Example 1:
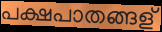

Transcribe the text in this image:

പക്ഷപാതങ്ങള്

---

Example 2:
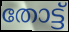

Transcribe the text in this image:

തോട്ട്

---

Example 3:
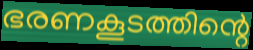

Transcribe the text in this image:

ഭരണകൂടത്തിന്റെ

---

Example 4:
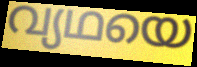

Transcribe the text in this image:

വ്യഥയെ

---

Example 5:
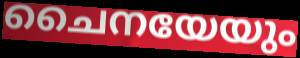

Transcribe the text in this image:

ചൈനയേയും